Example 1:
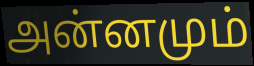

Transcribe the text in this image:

அன்னமும்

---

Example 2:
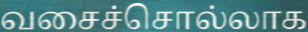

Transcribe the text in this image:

வசைச்சொல்லாக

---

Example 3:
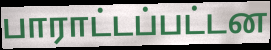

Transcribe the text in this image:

பாராட்டப்பட்டன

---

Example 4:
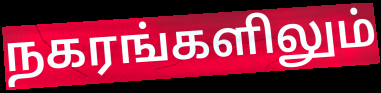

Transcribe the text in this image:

நகரங்களிலும்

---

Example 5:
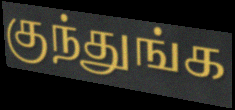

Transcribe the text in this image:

குந்துங்க